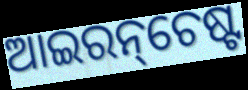
ଆଇରନ୍‌ଚେଷ୍ଟ